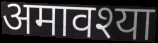
अमावश्या